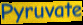
Pyruvate